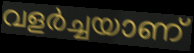
വളർച്ചയാണ്